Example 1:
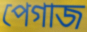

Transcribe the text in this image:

পেগাজ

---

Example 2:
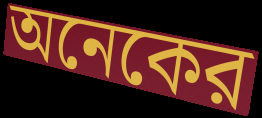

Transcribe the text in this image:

অনেকের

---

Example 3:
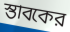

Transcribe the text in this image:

স্তাবকের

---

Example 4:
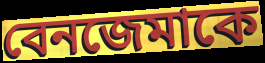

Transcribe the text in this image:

বেনজেমাকে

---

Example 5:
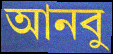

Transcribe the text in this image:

আনবু